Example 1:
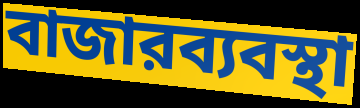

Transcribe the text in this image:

বাজারব্যবস্থা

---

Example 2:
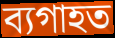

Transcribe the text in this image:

ব্যগাহত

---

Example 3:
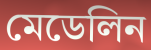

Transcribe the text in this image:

মেডেলিন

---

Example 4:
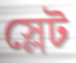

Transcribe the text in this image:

স্লেট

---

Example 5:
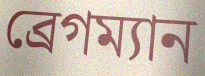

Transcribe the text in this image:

ব্রেগম্যান